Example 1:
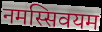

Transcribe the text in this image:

नमस्सिवयम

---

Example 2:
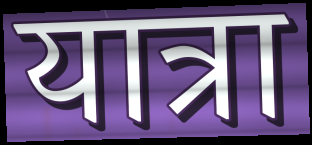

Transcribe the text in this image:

यात्रा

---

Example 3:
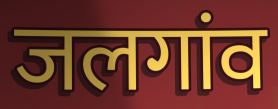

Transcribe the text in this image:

जलगांव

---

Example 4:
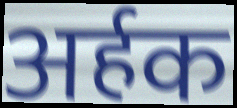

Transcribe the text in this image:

अर्हक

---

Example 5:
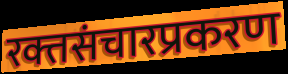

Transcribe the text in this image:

रक्तसंचारप्रकरण